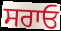
ਸਰਾਓ